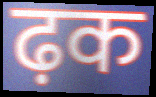
ढ़क